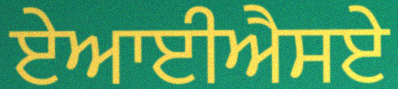
ਏਆਈਐਸਏ